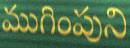
ముగింపుని